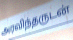
அரவிந்தருடன்